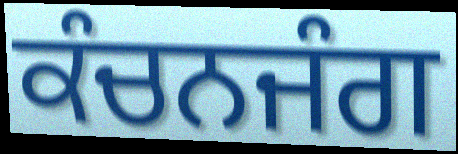
ਕੰਚਨਜੰਗ